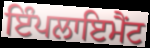
ਇੰਪਲਾਇਮੈਂਟ